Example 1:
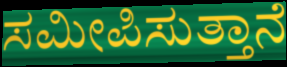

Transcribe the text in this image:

ಸಮೀಪಿಸುತ್ತಾನೆ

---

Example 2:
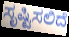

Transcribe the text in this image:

ಸೃಷ್ಟಿಸಲಿದೆ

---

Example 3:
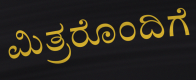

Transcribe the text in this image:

ಮಿತ್ರರೊಂದಿಗೆ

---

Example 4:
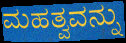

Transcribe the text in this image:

ಮಹತ್ವವನ್ನು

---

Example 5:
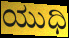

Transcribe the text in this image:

ಯುಧಿ